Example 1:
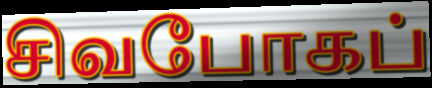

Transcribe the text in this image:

சிவபோகப்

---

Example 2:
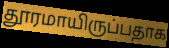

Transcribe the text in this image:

தூரமாயிருப்பதாக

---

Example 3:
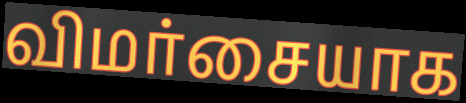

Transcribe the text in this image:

விமர்சையாக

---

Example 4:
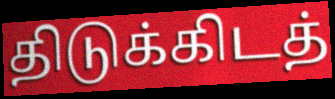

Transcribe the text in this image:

திடுக்கிடத்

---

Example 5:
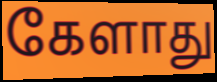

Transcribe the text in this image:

கேளாது